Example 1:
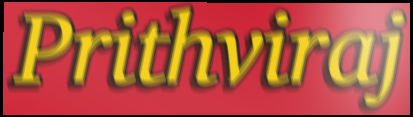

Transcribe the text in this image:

Prithviraj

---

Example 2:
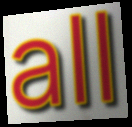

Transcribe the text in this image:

all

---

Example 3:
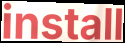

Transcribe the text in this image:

install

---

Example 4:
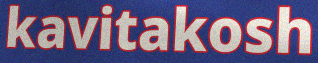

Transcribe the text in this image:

kavitakosh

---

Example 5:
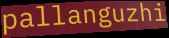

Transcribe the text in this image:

pallanguzhi